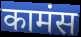
कामंस